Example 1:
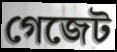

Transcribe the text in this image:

গেজেট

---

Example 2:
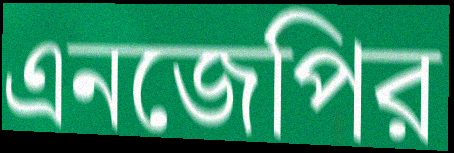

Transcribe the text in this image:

এনজেপির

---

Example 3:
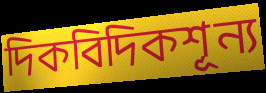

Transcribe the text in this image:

দিকবিদিকশূন্য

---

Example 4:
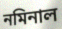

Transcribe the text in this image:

নমিনাল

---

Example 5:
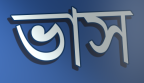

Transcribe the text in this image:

ভাস